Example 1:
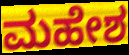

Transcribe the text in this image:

ಮಹೇಶ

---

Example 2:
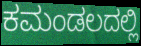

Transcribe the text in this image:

ಕಮಂಡಲದಲ್ಲಿ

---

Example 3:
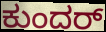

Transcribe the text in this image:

ಕುಂದರ್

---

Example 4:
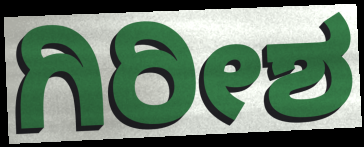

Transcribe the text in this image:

ಗಿರೀಶ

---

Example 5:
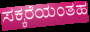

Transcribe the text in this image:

ಸಕ್ಕರೆಯಂತಹ